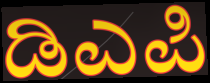
ಡಿಎಪಿ